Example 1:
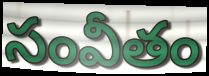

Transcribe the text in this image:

సంవీతం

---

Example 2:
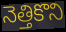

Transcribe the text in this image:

నెత్తికొని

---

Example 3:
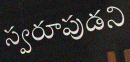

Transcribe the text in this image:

స్వరూపుడని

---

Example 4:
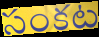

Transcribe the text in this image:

సంకట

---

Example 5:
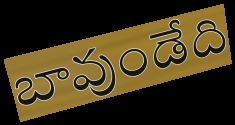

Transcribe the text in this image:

బావుండేది